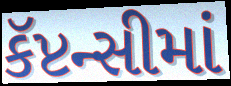
કૅપ્ટન્સીમાં